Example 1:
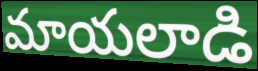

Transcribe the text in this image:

మాయలాడి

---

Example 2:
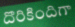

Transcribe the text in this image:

దొరికిందిగా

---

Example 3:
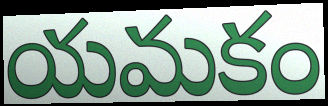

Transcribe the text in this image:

యమకం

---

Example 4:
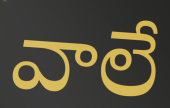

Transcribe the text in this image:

వాలే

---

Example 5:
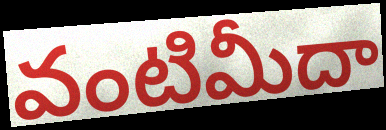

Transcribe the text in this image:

వంటిమీదా